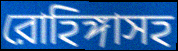
রোহিঙ্গাসহ